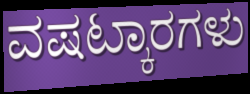
ವಷಟ್ಕಾರಗಳು